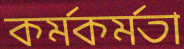
কর্মকর্মতা